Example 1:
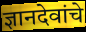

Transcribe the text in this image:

ज्ञानदेवांचे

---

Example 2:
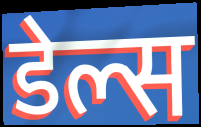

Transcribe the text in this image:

डेल्स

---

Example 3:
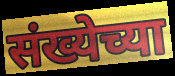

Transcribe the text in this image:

संख्येच्या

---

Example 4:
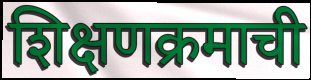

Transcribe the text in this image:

शिक्षणक्रमाची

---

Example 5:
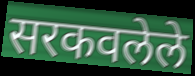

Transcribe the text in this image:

सरकवलेले